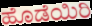
ಹೊಡೆಯಿರಿ